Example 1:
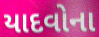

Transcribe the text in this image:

યાદવોના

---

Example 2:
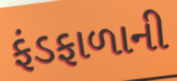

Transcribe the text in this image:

ફંડફાળાની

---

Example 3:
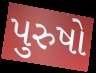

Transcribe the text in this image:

પુરુષો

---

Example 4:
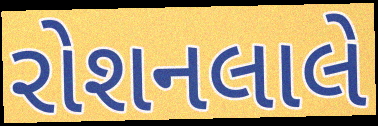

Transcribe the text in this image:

રોશનલાલે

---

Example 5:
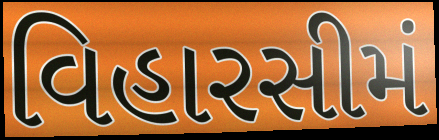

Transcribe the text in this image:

વિહારસીમં